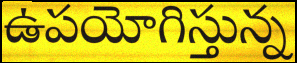
ఉపయోగిస్తున్న